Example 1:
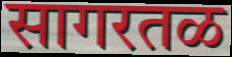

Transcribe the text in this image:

सागरतळ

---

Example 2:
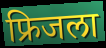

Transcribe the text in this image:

फ्रिजला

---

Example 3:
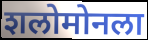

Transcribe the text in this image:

शलोमोनला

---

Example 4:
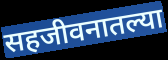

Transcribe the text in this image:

सहजीवनातल्या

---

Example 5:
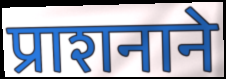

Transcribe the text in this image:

प्राशनाने